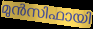
മുൻസിഫായി